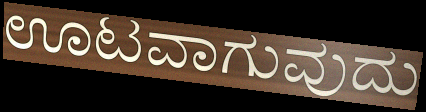
ಊಟವಾಗುವುದು